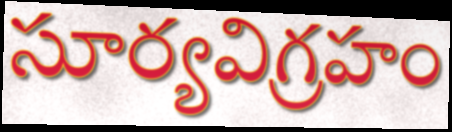
సూర్యవిగ్రహం